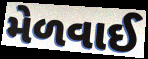
મેળવાઈ